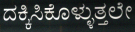
ದಕ್ಕಿಸಿಕೊಳ್ಳುತ್ತಲೇ